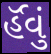
ર્હૅવું